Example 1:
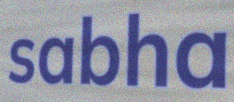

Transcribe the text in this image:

sabha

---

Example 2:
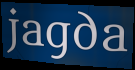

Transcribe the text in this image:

jagda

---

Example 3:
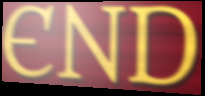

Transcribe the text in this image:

END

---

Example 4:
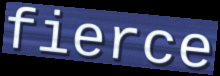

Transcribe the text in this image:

fierce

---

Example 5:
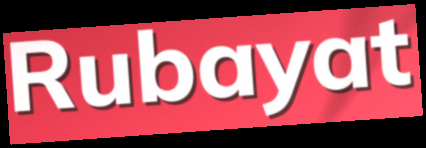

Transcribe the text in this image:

Rubayat